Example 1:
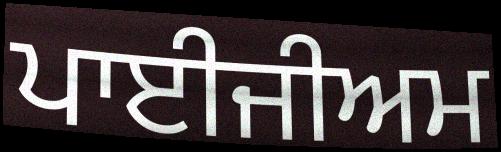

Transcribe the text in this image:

ਪਾਈਜੀਅਮ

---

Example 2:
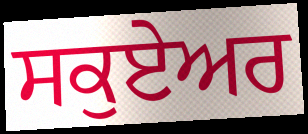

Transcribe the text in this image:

ਸਕੁਏਅਰ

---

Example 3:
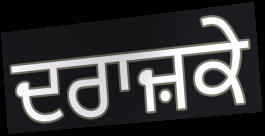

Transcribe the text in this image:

ਦਰਾਜ਼ਕੇ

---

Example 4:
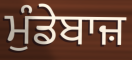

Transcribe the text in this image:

ਮੁੰਡੇਬਾਜ਼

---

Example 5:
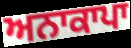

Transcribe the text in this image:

ਅਨਾਕਾਪਾ